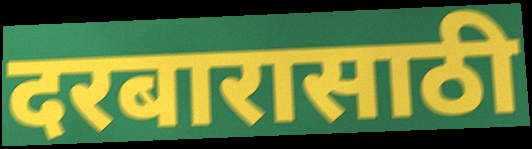
दरबारासाठी